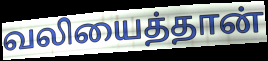
வலியைத்தான்